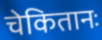
चेकितानः